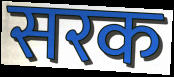
सरक